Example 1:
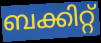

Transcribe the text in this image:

ബക്കിറ്റ്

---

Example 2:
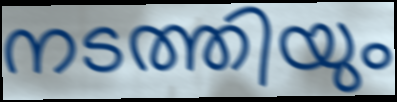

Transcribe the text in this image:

നടത്തിയും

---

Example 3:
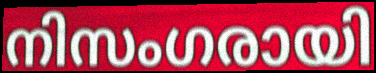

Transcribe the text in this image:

നിസംഗരായി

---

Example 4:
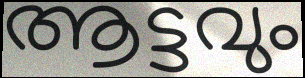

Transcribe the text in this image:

ആട്ടവും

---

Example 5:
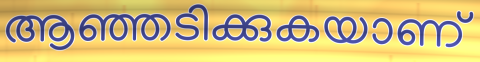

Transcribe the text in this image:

ആഞ്ഞടിക്കുകയാണ്